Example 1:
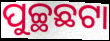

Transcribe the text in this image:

ପୁଚ୍ଛଛଟା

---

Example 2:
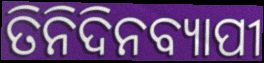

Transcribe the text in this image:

ତିନିଦିନବ୍ୟାପୀ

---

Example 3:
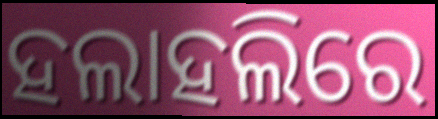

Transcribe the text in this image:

ହଲାହଲିରେ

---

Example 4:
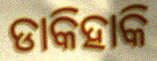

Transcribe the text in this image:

ଡାକିହାକି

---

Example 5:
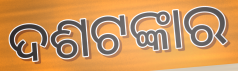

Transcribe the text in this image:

ଦଶଟଙ୍କାର